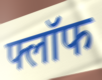
फ्लॉफ